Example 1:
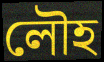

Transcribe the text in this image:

লৌহ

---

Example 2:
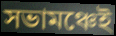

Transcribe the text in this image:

সভামঞ্চেই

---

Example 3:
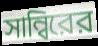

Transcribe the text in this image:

সান্বিরের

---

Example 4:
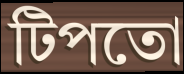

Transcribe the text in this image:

টিপতো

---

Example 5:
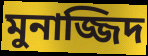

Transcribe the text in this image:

মুনাজ্জিদ